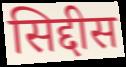
सिद्दीस